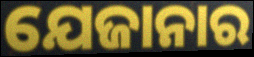
ଯେଜାନାର